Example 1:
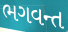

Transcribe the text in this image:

ભગવન્ત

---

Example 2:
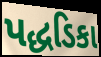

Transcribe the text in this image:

પદ્ધડિકા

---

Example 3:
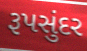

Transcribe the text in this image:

રૂપસુંદર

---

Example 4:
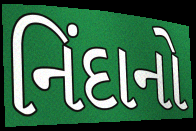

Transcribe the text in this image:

નિંદાનો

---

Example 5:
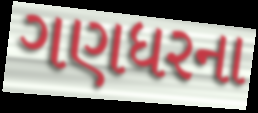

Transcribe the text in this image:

ગણધરના